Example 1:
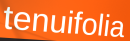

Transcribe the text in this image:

tenuifolia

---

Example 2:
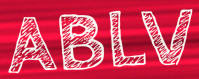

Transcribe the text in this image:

ABLV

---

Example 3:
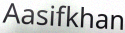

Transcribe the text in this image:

Aasifkhan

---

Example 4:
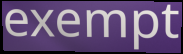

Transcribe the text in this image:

exempt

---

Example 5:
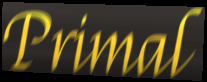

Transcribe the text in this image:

Primal